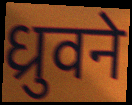
ध्रुवने